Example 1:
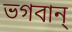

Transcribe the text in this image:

ভগবান্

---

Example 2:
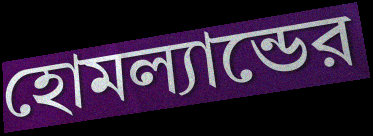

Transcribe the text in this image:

হোমল্যান্ডের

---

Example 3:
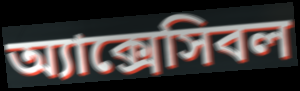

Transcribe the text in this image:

অ্যাক্সেসিবল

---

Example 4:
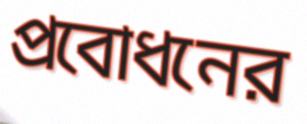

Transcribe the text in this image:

প্রবোধনের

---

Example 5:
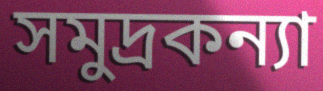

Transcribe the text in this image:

সমুদ্রকন্যা